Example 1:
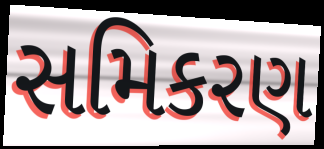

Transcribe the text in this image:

સમિકરણ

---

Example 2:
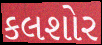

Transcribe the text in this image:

કલશોર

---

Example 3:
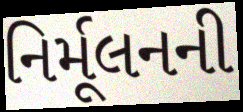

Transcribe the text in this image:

નિર્મૂલનની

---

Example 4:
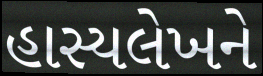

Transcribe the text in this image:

હાસ્યલેખને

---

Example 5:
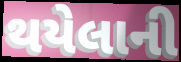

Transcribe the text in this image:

થયેલાની